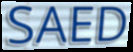
SAED